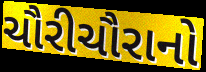
ચૌરીચૌરાનો